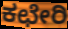
ಕಛೇರಿ